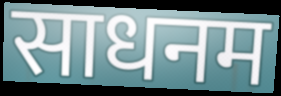
साधनम